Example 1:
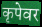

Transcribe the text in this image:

कृपेवर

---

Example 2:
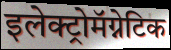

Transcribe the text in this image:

इलेक्ट्रोमॅग्नेटिक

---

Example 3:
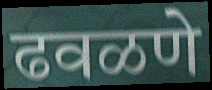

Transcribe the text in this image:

ढवळणे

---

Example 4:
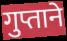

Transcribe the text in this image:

गुप्ताने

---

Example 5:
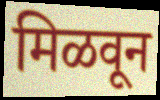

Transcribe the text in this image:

मिळवून